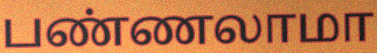
பண்ணலாமா